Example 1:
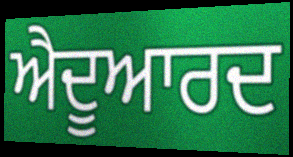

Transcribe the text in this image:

ਐਦੂਆਰਦ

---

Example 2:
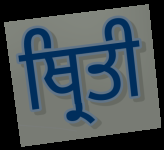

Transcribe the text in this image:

ਥ੍ਰਿਤੀ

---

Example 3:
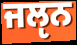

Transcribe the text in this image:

ਜਲੵਨ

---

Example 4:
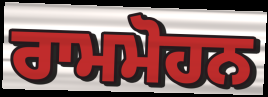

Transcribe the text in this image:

ਰਾਮਮੋਹਨ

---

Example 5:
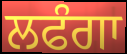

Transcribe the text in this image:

ਲਫੰਗਾ